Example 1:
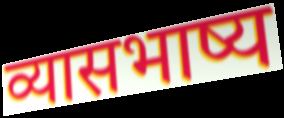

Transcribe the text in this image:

व्यासभाष्य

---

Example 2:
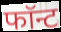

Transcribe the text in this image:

फॉन्ट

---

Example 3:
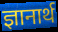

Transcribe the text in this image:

ज्ञानार्थ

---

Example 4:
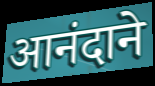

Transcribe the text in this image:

आनंदाने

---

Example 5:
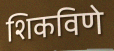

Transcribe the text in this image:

शिकविणे